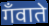
गँवाते